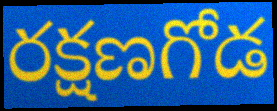
రక్షణగోడ